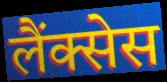
लैंक्‍सेस